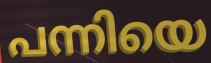
പന്നിയെ